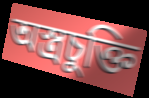
অস্ত্রচুক্তি